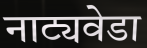
नाट्यवेडा